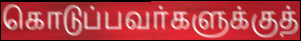
கொடுப்பவர்களுக்குத்